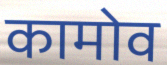
कामोव